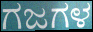
ಗಜಗಳ